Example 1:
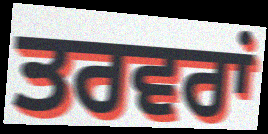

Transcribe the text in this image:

ਤਰਵਰਾਂ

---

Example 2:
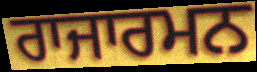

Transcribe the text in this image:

ਰਾਜਾਰਮਨ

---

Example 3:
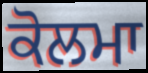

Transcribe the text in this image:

ਕੋਲਮਾ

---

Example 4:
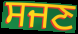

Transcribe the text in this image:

ਸਜਣ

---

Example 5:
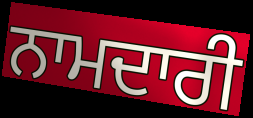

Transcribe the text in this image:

ਨਾਮਦਾਰੀ